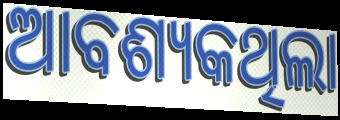
ଆବଶ୍ୟକଥିଲା